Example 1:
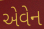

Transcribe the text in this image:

એવેન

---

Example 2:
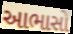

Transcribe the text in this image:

આભાસો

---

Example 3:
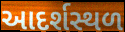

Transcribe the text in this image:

આદર્શસ્થળ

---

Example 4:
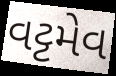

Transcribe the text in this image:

વટ્ટમેવ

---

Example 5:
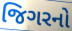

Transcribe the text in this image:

જિગરનો